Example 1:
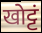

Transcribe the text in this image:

खोट्टं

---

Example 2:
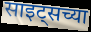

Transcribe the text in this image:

साइट्सच्या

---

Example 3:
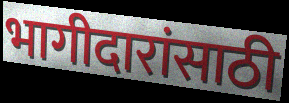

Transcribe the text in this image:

भागीदारांसाठी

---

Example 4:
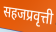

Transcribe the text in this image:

सहजप्रवृत्ती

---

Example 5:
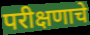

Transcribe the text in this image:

परीक्षणाचे